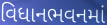
વિધાનભવનમાં